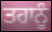
ਤਹਾਨੂੰ